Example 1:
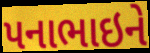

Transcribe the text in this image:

પનાભાઇને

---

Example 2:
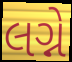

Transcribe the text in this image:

લગ્ને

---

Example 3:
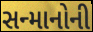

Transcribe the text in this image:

સન્માનોની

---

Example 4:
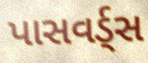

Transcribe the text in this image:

પાસવર્ડ્સ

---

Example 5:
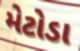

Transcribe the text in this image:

મેટોડા